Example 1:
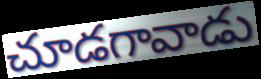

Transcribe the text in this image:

చూడగావాడు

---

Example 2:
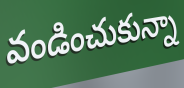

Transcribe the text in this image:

వండించుకున్నా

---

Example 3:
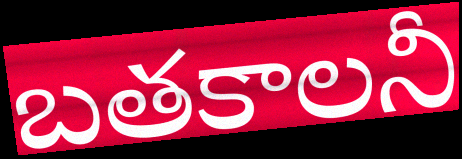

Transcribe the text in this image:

బతకాలనీ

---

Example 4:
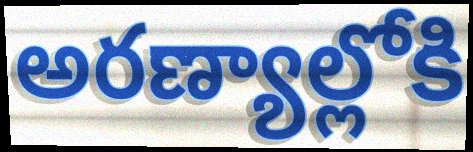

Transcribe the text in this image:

అరణ్యాల్లోకి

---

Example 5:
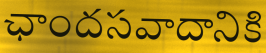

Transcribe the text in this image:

ఛాందసవాదానికి